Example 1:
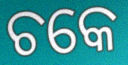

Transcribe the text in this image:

ଚକେ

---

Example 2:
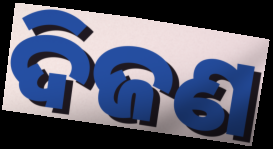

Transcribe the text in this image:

ଦିଜଣ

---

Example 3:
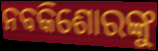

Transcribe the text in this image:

ନବକିଶୋରଙ୍କୁ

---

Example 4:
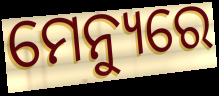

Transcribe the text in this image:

ମେନ୍ୟୁରେ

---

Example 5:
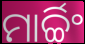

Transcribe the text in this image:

ମାର୍ଚ୍ଚିଂ